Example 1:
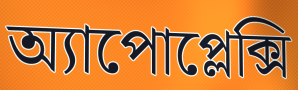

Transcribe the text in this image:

অ্যাপোপ্লেক্সি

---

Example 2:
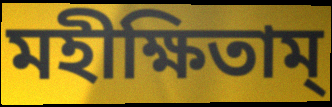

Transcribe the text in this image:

মহীক্ষিতাম্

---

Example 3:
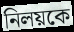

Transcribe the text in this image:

নিলয়কে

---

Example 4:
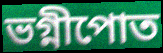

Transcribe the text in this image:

ভগ্নীপোত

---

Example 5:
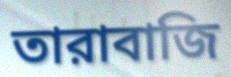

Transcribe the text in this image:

তারাবাজি